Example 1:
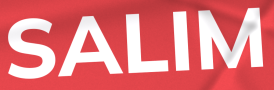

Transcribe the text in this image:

SALIM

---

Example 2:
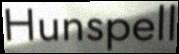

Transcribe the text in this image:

Hunspell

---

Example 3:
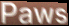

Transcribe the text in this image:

Paws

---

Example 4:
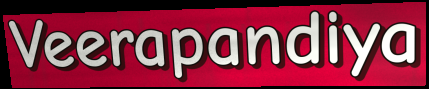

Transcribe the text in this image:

Veerapandiya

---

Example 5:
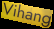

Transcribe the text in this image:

Vihang